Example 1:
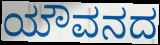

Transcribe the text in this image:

ಯೌವನದ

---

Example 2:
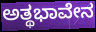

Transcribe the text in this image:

ಅತ್ಥಭಾವೇನ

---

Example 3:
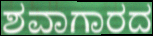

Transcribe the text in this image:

ಶವಾಗಾರದ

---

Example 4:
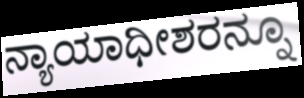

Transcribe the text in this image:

ನ್ಯಾಯಾಧೀಶರನ್ನೂ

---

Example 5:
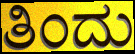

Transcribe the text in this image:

ತಿಂದು